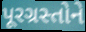
પૂરગ્રસ્તોને